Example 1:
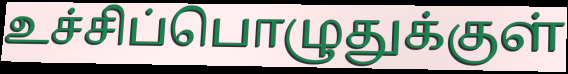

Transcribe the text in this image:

உச்சிப்பொழுதுக்குள்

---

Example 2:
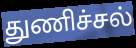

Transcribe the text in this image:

துணிச்சல்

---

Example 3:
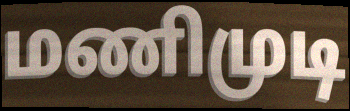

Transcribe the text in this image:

மணிமுடி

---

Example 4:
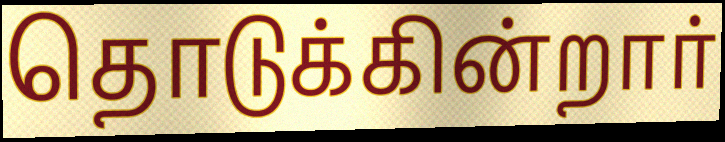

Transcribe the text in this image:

தொடுக்கின்றார்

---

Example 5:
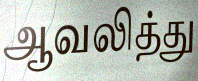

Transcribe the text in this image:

ஆவலித்து